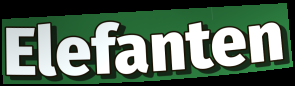
Elefanten